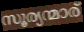
സൂര്യന്മാര്